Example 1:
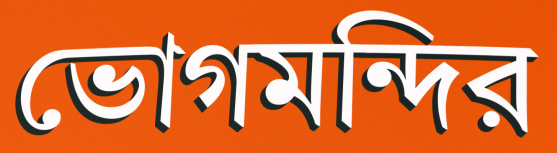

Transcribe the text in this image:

ভোগমন্দির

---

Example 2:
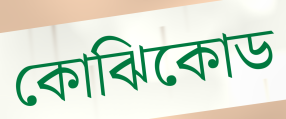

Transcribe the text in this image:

কোঝিকোড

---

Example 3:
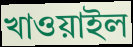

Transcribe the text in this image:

খাওয়াইল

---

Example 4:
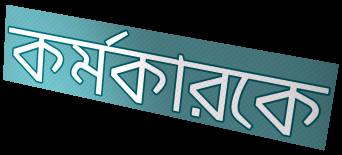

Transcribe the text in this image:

কর্মকারকে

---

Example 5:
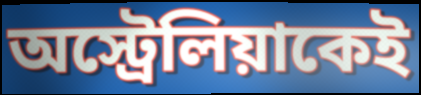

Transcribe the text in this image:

অস্ট্রেলিয়াকেই